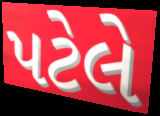
પટેલે